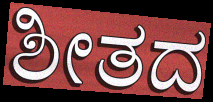
ಶೀತದ